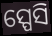
ସ୍ପେସି